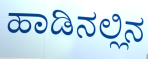
ಹಾಡಿನಲ್ಲಿನ